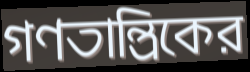
গণতান্ত্রিকের